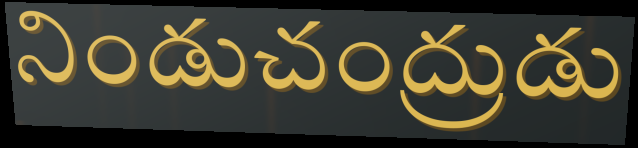
నిండుచంద్రుడు